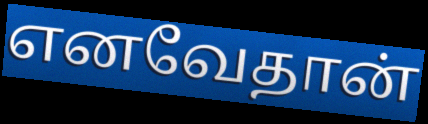
எனவேதான்